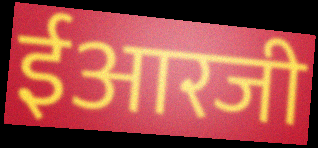
ईआरजी